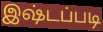
இஷ்டப்படி